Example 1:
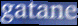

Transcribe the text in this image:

gatane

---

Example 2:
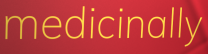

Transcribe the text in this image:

medicinally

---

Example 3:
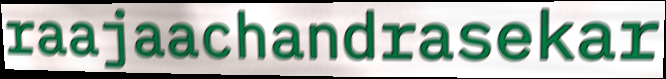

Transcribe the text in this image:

raajaachandrasekar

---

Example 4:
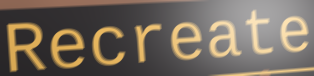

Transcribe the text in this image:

Recreate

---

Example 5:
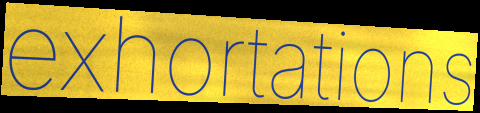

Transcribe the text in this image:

exhortations